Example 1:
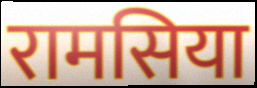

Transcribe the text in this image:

रामसिया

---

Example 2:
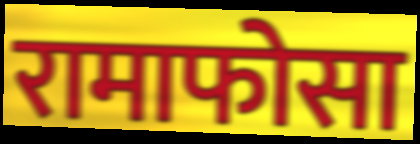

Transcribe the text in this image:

रामाफोसा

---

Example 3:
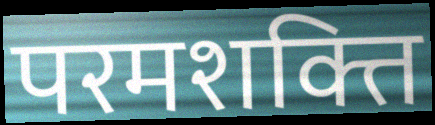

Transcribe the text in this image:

परमशक्ति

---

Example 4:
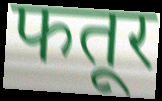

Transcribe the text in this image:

फतूर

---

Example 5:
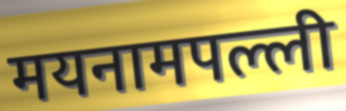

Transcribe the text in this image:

मयनामपल्ली